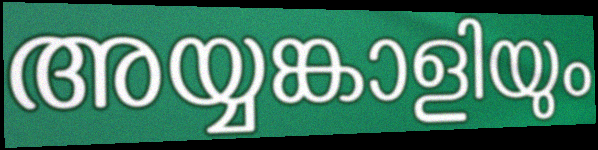
അയ്യങ്കാളിയും